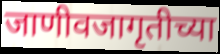
जाणीवजागृतीच्या